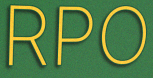
RPO